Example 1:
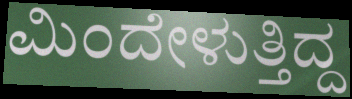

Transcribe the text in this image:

ಮಿಂದೇಳುತ್ತಿದ್ದ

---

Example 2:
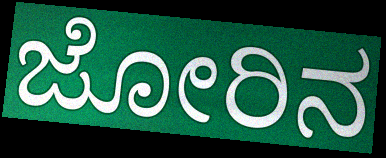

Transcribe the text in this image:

ಜೋರಿನ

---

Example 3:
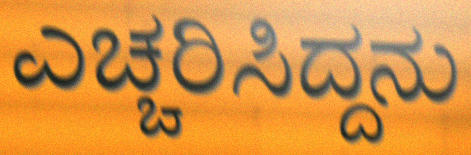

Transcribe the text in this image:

ಎಚ್ಚರಿಸಿದ್ದನು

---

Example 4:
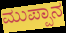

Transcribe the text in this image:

ಮುಪ್ಪಾನ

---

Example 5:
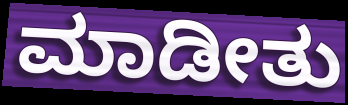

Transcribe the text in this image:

ಮಾಡೀತು